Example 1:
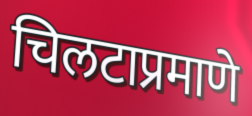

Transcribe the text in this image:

चिलटाप्रमाणे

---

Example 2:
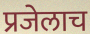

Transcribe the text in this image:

प्रजेलाच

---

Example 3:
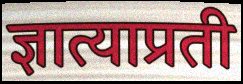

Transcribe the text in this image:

ज्ञात्याप्रती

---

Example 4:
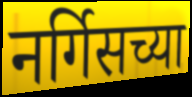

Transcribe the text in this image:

नर्गिसच्या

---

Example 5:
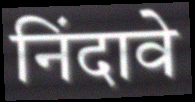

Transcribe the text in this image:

निंदावे